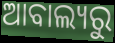
ଆବାଲ୍ୟରୁ